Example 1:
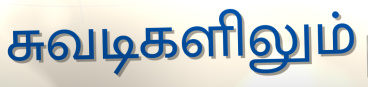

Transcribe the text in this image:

சுவடிகளிலும்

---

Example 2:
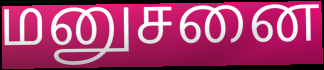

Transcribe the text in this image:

மனுசனை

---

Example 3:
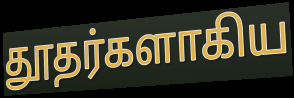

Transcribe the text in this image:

தூதர்களாகிய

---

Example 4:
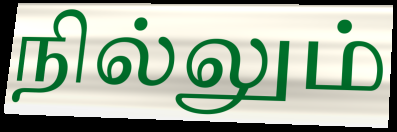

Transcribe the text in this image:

நில்லும்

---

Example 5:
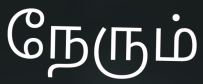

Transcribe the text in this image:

நேரும்